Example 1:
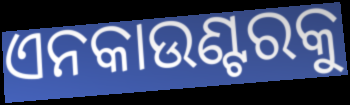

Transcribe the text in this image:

ଏନକାଉଣ୍ଟରକୁ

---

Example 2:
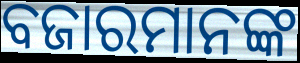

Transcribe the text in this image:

ବଜାରମାନଙ୍କ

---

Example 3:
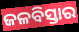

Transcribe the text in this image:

ଜଳବିସ୍ତାର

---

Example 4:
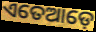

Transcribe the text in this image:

ଏତେଆଡ଼େ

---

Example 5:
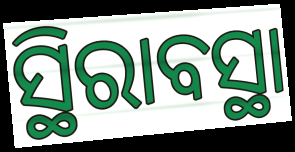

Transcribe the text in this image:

ସ୍ଥିରାବସ୍ଥା